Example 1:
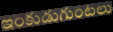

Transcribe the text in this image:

ఇంకుడుగుంటలు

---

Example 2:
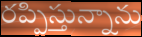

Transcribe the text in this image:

రప్పిస్తున్నాను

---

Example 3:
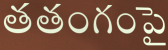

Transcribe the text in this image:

తతంగంపై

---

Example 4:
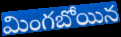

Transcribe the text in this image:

మింగబోయిన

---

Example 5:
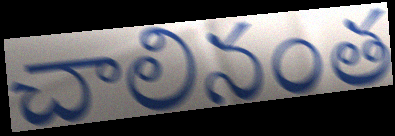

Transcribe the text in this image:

చాలినంత